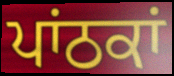
ਪਾਂਠਕਾਂ